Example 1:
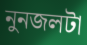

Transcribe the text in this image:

নুনজলটা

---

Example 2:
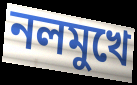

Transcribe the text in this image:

নলমুখে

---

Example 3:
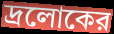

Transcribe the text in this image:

দ্রলোকের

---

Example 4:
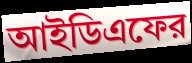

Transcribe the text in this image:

আইডিএফের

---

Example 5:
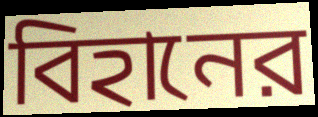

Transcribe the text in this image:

বিহানের